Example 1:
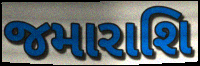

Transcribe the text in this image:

જમારાશિ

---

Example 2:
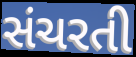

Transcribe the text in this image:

સંચરતી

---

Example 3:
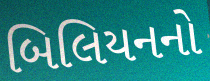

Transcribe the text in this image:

બિલિયનનો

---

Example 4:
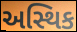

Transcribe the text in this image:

અસ્થિક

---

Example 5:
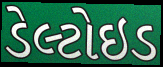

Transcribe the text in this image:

ડેલ્ટોઇડ